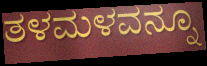
ತಳಮಳವನ್ನೂ